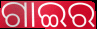
ଗାଇର